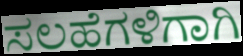
ಸಲಹೆಗಳಿಗಾಗಿ